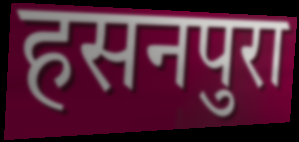
हसनपुरा